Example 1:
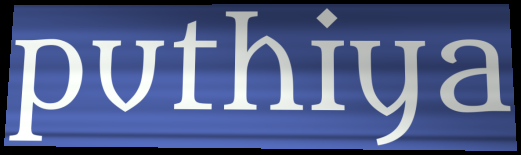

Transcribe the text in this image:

puthiya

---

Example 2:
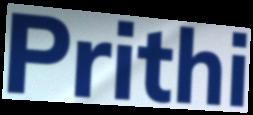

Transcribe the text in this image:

Prithi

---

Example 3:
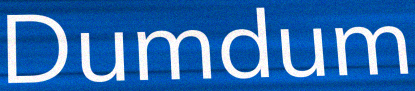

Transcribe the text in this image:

Dumdum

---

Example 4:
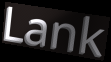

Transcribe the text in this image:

Lank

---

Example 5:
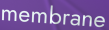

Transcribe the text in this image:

membrane